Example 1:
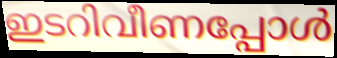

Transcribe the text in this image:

ഇടറിവീണപ്പോൾ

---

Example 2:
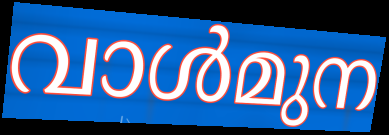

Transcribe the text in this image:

വാൾമുന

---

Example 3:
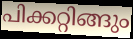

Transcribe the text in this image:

പിക്കറ്റിങ്ങും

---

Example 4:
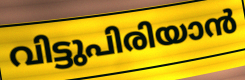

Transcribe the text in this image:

വിട്ടുപിരിയാൻ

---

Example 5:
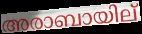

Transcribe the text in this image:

അരാബായില്